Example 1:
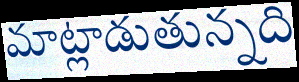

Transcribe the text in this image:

మాట్లాడుతున్నది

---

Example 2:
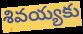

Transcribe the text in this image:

శివయ్యకు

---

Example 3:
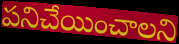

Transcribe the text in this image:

పనిచేయించాలని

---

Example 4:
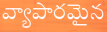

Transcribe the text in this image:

వ్యాపారమైన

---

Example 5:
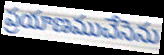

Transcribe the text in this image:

ప్రయాణముచేసెను